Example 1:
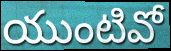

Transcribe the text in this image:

యుంటివో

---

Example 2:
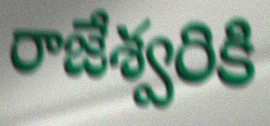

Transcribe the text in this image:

రాజేశ్వరికి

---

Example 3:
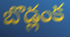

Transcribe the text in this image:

బొడ్లంక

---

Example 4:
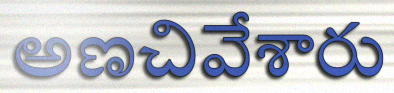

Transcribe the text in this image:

అణచివేశారు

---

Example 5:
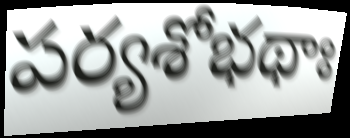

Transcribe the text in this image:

పర్యశోభథాః